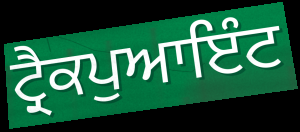
ਟ੍ਰੈਕਪੁਆਇੰਟ